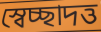
স্বেচ্ছাদত্ত